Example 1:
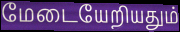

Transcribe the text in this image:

மேடையேறியதும்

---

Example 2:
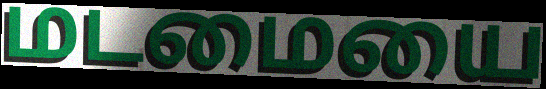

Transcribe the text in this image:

மடமையை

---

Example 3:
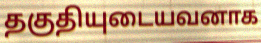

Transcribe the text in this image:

தகுதியுடையவனாக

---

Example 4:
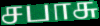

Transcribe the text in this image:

சபாசு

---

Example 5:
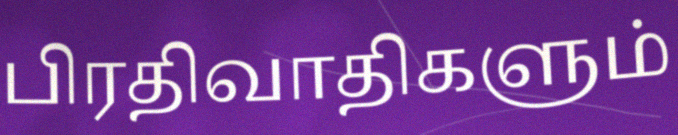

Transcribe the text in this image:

பிரதிவாதிகளும்